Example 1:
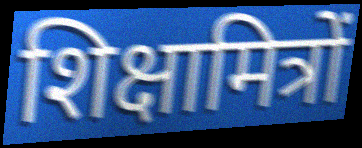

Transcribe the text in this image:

शिक्षामित्रों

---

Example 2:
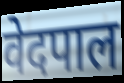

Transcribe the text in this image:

वेदपाल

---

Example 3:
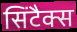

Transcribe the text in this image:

सिंटैक्स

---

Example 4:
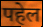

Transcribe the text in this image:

पहेल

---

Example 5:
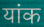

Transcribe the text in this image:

यांक